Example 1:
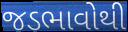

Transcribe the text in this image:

જડભાવોથી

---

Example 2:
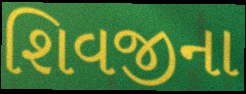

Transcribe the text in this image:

શિવજીના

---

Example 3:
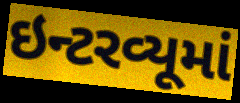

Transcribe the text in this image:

ઇન્ટરવ્યૂમાં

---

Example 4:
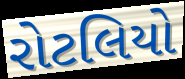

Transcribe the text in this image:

રોટલિયો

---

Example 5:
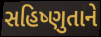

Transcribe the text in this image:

સહિષ્ણુતાને